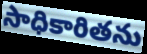
సాధికారితను